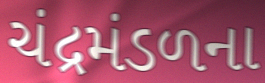
ચંદ્રમંડળના